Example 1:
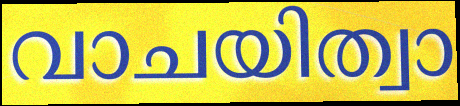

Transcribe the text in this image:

വാചയിത്വാ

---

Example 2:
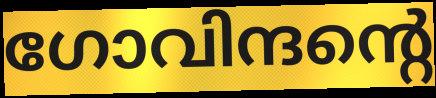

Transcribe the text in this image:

ഗോവിന്ദന്റെ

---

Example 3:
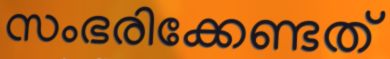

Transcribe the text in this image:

സംഭരിക്കേണ്ടത്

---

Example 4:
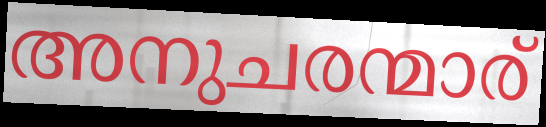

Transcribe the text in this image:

അനുചരന്മാര്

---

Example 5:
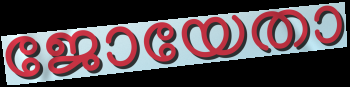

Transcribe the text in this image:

ജോയേതാ